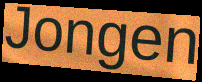
Jongen